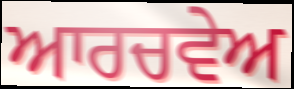
ਆਰਚਵੇਅ